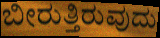
ಬೀರುತ್ತಿರುವುದು